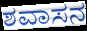
ಶವಾಸನ